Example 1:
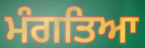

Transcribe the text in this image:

ਮੰਗਤਿਆ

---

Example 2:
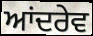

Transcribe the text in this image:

ਆਂਦਰੇਵ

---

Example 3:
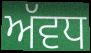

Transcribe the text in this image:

ਅੱਵਧ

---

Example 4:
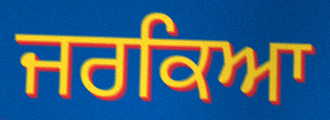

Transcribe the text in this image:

ਜਰਕਿਆ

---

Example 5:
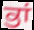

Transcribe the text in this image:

ਭਾਂ